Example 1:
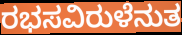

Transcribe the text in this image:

ರಭಸವಿರುಳೆನುತ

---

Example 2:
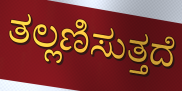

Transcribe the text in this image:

ತಲ್ಲಣಿಸುತ್ತದೆ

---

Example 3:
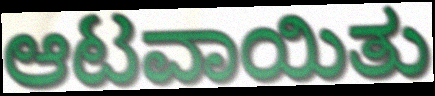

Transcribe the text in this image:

ಆಟವಾಯಿತು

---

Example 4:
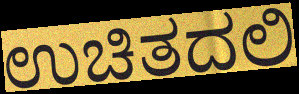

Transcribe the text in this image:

ಉಚಿತದಲಿ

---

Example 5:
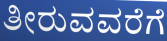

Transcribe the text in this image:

ತೀರುವವರೆಗೆ